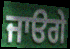
ਜਾੳਗੇ